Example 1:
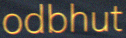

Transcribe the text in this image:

odbhut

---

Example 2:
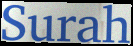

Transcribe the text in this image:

Surah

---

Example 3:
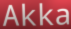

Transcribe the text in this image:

Akka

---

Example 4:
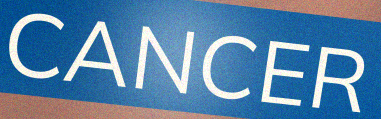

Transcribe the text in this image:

CANCER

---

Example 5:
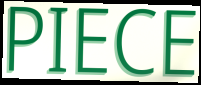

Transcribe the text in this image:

PIECE